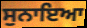
ਸੁਨਾਇਆ